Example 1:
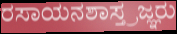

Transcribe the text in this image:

ರಸಾಯನಶಾಸ್ತ್ರಜ್ಞರು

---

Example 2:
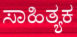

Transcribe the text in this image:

ಸಾಹಿತ್ಯಕ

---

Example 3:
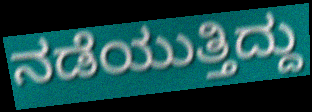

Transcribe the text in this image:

ನಡೆಯುತ್ತಿದ್ದು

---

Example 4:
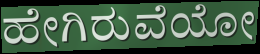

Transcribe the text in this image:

ಹೇಗಿರುವೆಯೋ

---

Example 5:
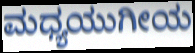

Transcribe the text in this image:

ಮಧ್ಯಯುಗೀಯ